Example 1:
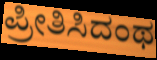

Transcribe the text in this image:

ಪ್ರೀತಿಸಿದಂಥ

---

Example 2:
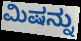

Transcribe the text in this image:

ಮಿಷನ್ನು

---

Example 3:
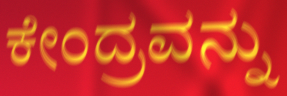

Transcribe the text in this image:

ಕೇಂದ್ರವನ್ನು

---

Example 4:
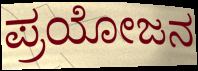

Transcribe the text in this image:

ಪ್ರಯೋಜನ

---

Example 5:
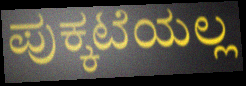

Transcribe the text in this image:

ಪುಕ್ಕಟೆಯಲ್ಲ